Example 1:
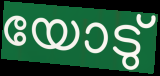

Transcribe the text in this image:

യോടു്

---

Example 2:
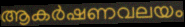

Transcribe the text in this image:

ആകർഷണവലയം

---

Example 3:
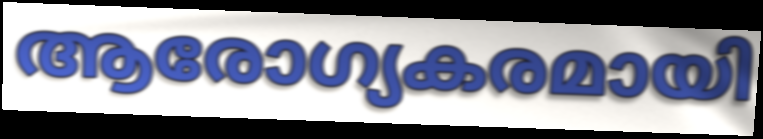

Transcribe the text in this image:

ആരോഗ്യകരമായി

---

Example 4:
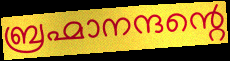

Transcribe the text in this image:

ബ്രഹ്മാനന്ദന്റെ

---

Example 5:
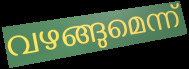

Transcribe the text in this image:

വഴങ്ങുമെന്ന്